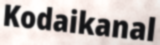
Kodaikanal